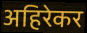
अहिरेकर